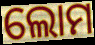
ଲୋମ